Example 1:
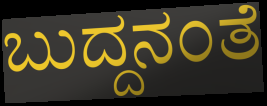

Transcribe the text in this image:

ಬುದ್ದನಂತೆ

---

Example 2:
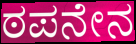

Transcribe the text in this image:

ಠಪನೇನ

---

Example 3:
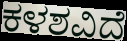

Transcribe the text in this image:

ಕಳಶವಿದೆ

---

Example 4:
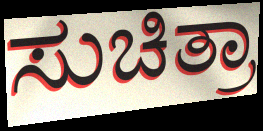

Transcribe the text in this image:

ಸುಚಿತ್ರಾ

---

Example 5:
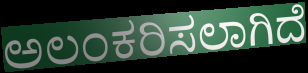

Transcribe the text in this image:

ಅಲಂಕರಿಸಲಾಗಿದೆ